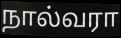
நால்வரா